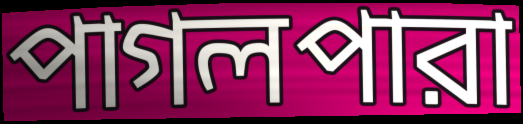
পাগলপারা